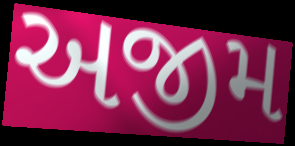
અજીમ